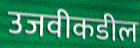
उजवीकडील